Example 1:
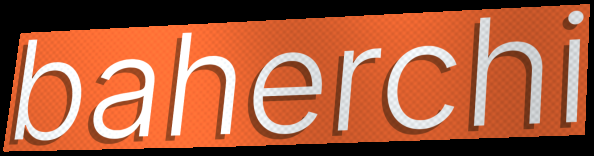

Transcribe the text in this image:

baherchi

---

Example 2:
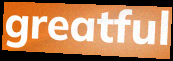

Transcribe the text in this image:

greatful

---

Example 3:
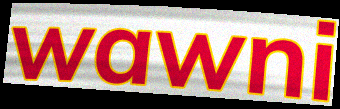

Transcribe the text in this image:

wawni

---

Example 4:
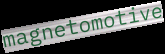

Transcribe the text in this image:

magnetomotive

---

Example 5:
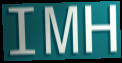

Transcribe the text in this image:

IMH